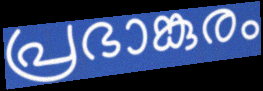
പ്രഭാങ്കുരം